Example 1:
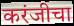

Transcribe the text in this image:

करंजीचा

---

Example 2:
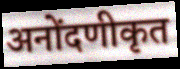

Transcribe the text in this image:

अनोंदणीकृत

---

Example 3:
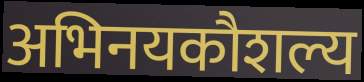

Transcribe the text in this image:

अभिनयकौशल्य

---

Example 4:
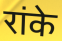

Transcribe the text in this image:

रांके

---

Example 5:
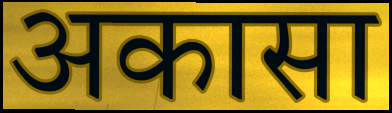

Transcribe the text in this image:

अकासा